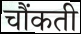
चौंकती